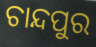
ଚାନ୍ଦପୁର